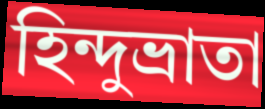
হিন্দুভ্রাতা